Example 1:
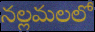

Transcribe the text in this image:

నల్లమలలో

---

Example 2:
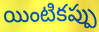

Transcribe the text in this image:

యింటికప్పు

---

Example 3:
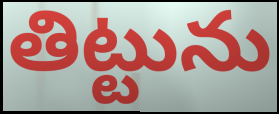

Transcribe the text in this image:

తిట్టును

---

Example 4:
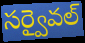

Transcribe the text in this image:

సర్వైవల్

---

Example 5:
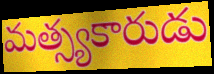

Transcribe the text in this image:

మత్స్యకారుడు